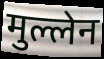
मुल्लेन